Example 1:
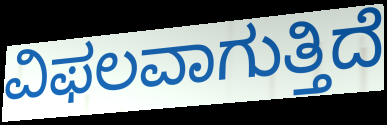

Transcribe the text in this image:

ವಿಫಲವಾಗುತ್ತಿದೆ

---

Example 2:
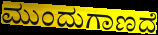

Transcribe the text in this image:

ಮುಂದುಗಾಣದೆ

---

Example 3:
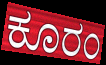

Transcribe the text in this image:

ಕೂರಂ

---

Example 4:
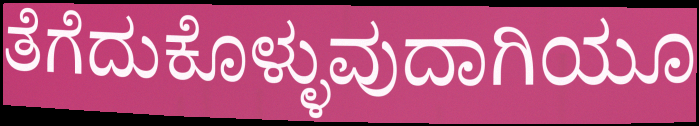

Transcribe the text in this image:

ತೆಗೆದುಕೊಳ್ಳುವುದಾಗಿಯೂ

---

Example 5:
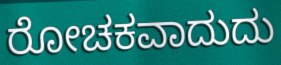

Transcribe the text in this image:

ರೋಚಕವಾದುದು